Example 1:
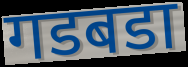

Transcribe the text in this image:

गडबडा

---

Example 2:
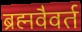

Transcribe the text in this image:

ब्रह्मवैवर्त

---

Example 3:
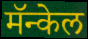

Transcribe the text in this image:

मॅन्केल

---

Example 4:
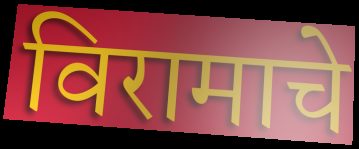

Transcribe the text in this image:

विरामाचे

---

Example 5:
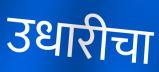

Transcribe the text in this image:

उधारीचा